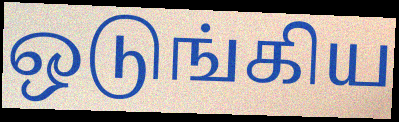
ஒடுங்கிய